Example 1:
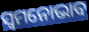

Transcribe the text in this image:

ସ୍ୱମନୋଭାବ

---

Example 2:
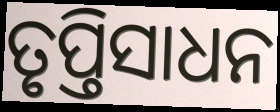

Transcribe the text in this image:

ତୃପ୍ତିସାଧନ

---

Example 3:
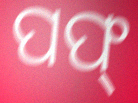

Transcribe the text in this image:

ପଫ୍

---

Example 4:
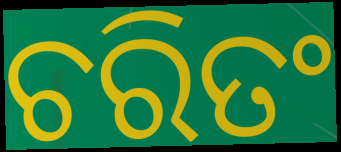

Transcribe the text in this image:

ଚରିତଂ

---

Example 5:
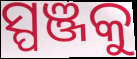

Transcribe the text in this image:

ସ୍ପଞ୍ଜକୁ